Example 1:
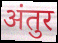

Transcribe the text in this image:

अंतुर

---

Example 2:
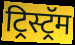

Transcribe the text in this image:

ट्रिस्ट्रॅम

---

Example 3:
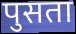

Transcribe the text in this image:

पुसता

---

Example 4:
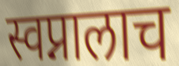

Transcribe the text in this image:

स्वप्नालाच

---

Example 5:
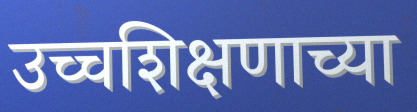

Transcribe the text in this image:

उच्चशिक्षणाच्या